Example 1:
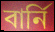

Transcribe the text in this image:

বার্নি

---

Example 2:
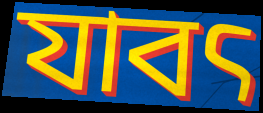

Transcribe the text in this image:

যাবৎ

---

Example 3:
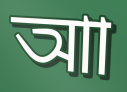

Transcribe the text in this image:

আা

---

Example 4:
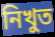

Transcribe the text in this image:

নিখুত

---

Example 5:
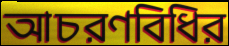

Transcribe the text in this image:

আচরণবিধির